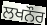
ਲਖਨੌਰ